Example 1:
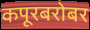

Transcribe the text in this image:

कपूरबरोबर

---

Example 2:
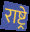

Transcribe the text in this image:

राष्ट्रे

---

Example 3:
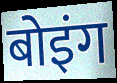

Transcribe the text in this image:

बोइंग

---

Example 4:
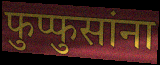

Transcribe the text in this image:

फुप्फुसांना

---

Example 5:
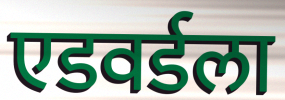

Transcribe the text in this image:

एडवर्डला